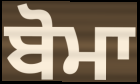
ਬੋਮਾ